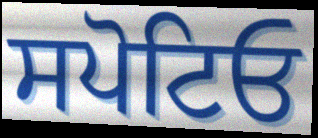
ਸਪੋਟਿਓ